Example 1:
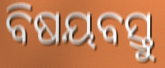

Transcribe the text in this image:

ବିଷୟବସ୍ତୁ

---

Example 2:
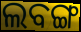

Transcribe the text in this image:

ଲବଙ୍ଗ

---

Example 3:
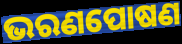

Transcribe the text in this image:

ଭରଣପୋଷଣ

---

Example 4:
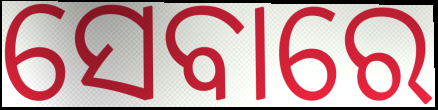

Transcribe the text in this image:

ସେବାରେ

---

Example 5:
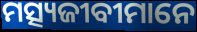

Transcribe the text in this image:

ମତ୍ସ୍ୟଜୀବୀମାନେ